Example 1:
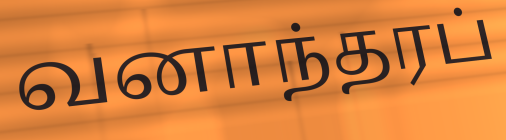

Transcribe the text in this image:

வனாந்தரப்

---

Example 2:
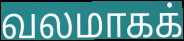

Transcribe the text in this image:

வலமாகக்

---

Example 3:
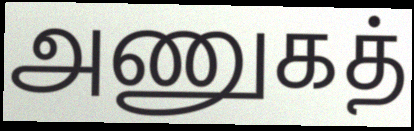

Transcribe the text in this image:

அணுகத்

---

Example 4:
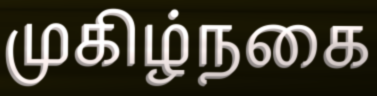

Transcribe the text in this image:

முகிழ்நகை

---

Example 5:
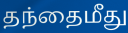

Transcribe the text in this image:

தந்தைமீது